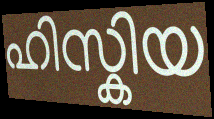
ഹിസ്കിയ